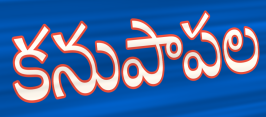
కనుపాపల